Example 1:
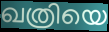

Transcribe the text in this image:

ഖത്രിയെ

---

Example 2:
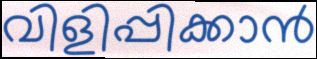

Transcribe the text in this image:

വിളിപ്പിക്കാൻ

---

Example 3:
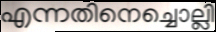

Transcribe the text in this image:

എന്നതിനെച്ചൊല്ലി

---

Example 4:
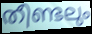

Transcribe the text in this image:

തീണ്ടലും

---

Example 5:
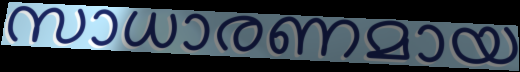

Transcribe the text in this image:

സാധാരണമായ